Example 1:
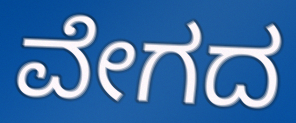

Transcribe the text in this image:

ವೇಗದ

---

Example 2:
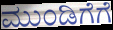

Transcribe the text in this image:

ಮುಂಡಿಗೆಗೆ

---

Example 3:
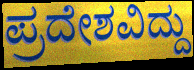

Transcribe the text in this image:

ಪ್ರದೇಶವಿದ್ದು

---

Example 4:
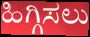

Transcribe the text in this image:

ಹಿಗ್ಗಿಸಲು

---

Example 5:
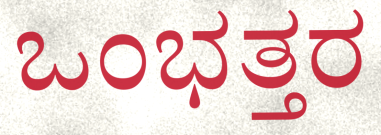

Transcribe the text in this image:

ಒಂಭತ್ತರ